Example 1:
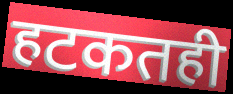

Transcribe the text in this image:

हटकतही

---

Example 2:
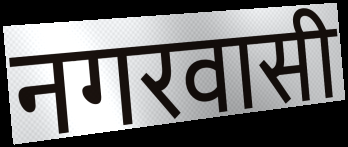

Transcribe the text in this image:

नगरवासी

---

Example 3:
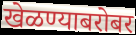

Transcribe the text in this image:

खेळण्याबरोबर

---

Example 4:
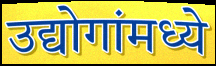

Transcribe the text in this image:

उद्योगांमध्ये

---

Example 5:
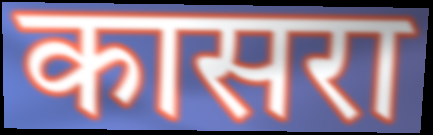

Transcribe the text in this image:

कासरा